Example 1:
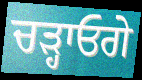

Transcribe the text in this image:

ਚੜ੍ਹਾਓਗੇ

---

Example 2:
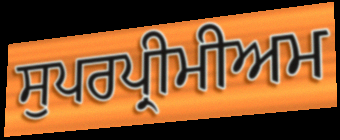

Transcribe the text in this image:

ਸੁਪਰਪ੍ਰੀਮੀਅਮ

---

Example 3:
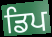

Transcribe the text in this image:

ਡਿਪ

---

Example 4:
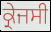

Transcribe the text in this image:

ਕ੍ਰੇਜਸੀ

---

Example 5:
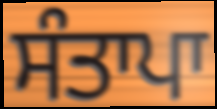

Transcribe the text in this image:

ਸੰਤਾਪਾ